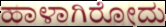
ಹಾಳಾಗಿರೋದು